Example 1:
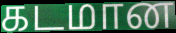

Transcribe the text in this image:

கடமான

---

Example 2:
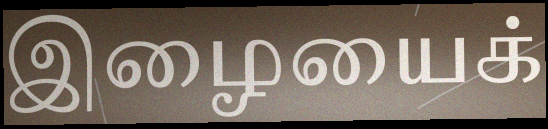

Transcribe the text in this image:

இழையைக்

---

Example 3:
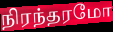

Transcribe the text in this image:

நிரந்தரமோ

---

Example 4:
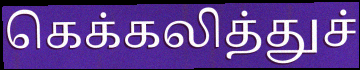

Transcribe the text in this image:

கெக்கலித்துச்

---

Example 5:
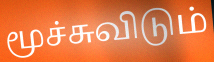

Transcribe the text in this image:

மூச்சுவிடும்